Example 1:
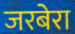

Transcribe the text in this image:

जरबेरा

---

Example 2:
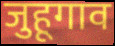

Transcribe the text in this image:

जुहूगाव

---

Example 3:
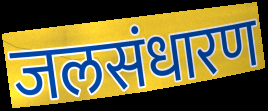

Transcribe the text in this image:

जलसंधारण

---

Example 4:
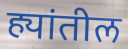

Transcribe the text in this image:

ह्यांतील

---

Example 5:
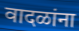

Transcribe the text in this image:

वादळांना